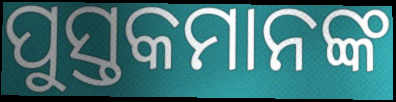
ପୁସ୍ତକମାନଙ୍କ